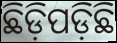
ଛିଡ଼ିପଡ଼ିଛି